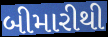
બીમારીથી